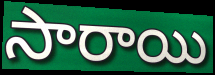
సారాయి